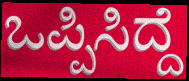
ಒಪ್ಪಿಸಿದ್ದೆ